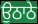
ਉਠਾਠੇ